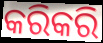
କରିକରି